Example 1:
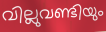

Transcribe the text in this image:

വില്ലുവണ്ടിയും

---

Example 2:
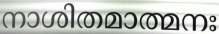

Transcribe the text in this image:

നാശിതമാത്മനഃ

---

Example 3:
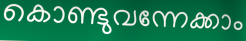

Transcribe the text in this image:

കൊണ്ടുവന്നേക്കാം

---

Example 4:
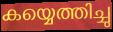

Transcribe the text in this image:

കയ്യെത്തിച്ചു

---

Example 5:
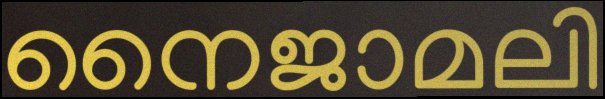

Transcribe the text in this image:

നൈജാമലി